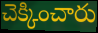
చెక్కించారు